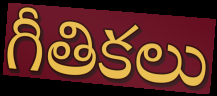
గీతికలు